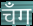
चँग